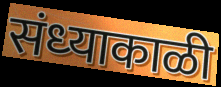
संध्‍याकाळी